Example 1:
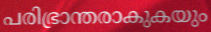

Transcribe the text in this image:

പരിഭ്രാന്തരാകുകയും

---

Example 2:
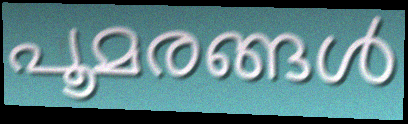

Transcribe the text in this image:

പൂമരങ്ങൾ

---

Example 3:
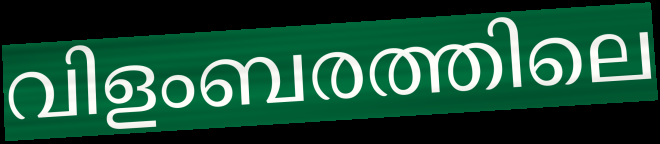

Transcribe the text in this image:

വിളംബരത്തിലെ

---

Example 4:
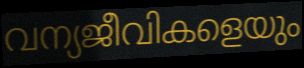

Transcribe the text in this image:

വന്യജീവികളെയും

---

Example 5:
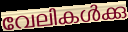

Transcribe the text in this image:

വേലികൾക്കു